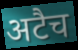
अटैच